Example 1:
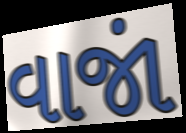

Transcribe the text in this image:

વાજાં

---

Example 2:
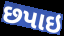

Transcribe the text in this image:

છપાઇ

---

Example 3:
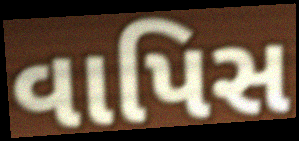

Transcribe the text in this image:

વાપિસ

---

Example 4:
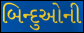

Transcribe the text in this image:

બિન્દુઓની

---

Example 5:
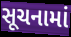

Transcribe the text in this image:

સૂચનામાં